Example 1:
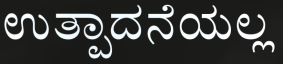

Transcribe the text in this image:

ಉತ್ಪಾದನೆಯಲ್ಲ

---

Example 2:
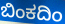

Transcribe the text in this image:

ಬಿಂಕದಿಂ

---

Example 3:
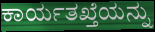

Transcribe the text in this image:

ಕಾರ್ಯತಖ್ತೆಯನ್ನು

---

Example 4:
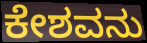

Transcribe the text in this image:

ಕೇಶವನು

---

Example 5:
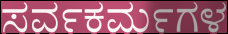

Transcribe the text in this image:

ಸರ್ವಕರ್ಮಗಳ